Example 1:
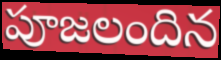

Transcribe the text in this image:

పూజలందిన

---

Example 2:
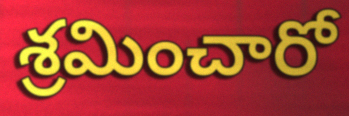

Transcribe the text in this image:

శ్రమించారో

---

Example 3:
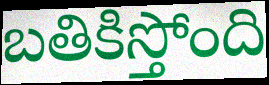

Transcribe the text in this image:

బతికిస్తోంది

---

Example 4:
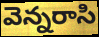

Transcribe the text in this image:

వెన్నరాసి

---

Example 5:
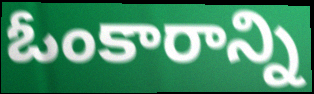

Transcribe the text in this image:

ఓంకారాన్ని